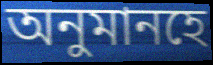
অনুমানহে